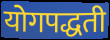
योगपद्धती